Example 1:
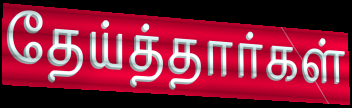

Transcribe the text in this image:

தேய்த்தார்கள்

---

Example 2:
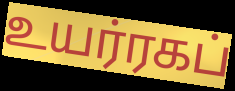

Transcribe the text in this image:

உயர்ரகப்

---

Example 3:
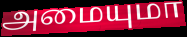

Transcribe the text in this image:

அமையுமா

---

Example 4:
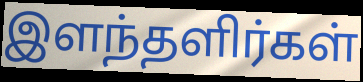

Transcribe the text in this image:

இளந்தளிர்கள்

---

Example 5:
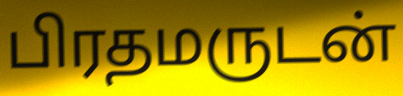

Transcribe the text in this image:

பிரதமருடன்